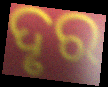
ଦୃର